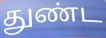
துண்ட